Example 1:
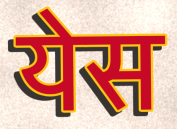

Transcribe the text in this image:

येस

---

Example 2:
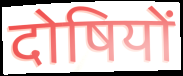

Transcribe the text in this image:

दोषियों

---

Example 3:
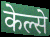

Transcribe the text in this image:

केल्से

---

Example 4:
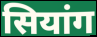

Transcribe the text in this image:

सियांग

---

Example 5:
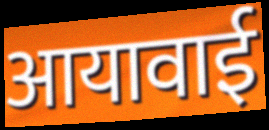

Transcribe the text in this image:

आयावाई